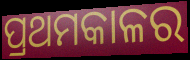
ପ୍ରଥମକାଳର